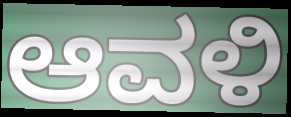
ಆವಳಿ